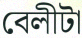
বেলীটা